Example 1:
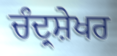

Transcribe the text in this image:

ਚੰਦ੍ਰਸ਼ੇਖਰ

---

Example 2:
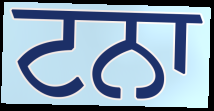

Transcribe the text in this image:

ਟਨਾ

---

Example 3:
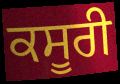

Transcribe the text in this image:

ਕਸੂਰੀ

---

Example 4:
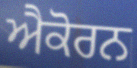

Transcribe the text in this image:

ਐਕੋਰਨ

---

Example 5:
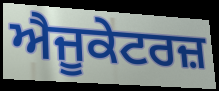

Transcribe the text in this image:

ਐਜੂਕੇਟਰਜ਼